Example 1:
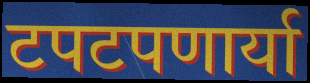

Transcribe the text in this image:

टपटपणार्या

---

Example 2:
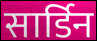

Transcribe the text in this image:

सार्डिन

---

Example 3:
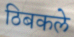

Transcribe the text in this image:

ठिबकले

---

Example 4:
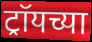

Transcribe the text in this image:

ट्रॉयच्या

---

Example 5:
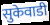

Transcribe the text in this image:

सुकेवाडी